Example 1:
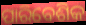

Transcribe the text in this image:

ପାରିବେଶିକ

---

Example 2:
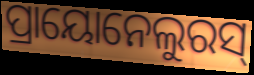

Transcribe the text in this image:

ପ୍ରାୟୋନେଲୁରସ୍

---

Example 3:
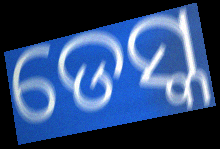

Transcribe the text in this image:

ଡେସ୍କ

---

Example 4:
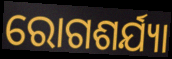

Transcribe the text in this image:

ରୋଗଶର୍ଯ୍ୟା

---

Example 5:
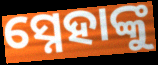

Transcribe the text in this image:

ସ୍ନେହାଙ୍କୁ